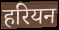
हरियन